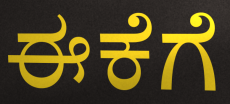
ಈಕೆಗೆ